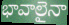
భావాలైనా